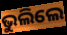
ଭୁଲିଲେ